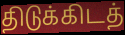
திடுக்கிடத்